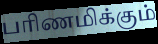
பரிணமிக்கும்